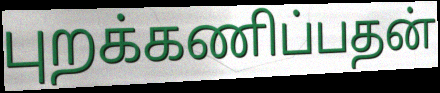
புறக்கணிப்பதன்